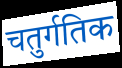
चतुर्गतिक